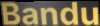
Bandu